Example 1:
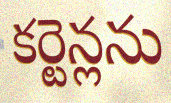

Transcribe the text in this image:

కర్టెన్లను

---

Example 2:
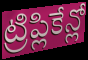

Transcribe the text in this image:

ట్రిప్లికేన్లో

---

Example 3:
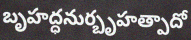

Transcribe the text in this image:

బృహద్ధనుర్బృహత్పాదో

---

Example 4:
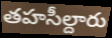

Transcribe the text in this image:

తహసీల్దారు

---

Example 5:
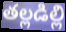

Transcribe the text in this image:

తల్లడిల్లి